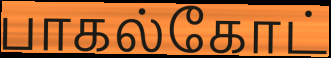
பாகல்கோட்